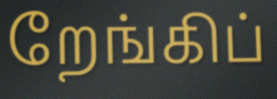
றேங்கிப்